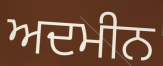
ਅਦਮੀਨ